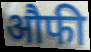
औफी